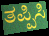
ತಪ್ಪಿಸಿ